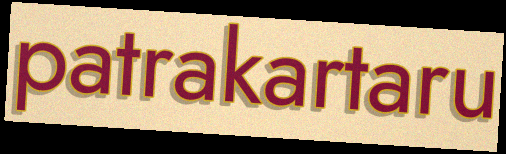
patrakartaru